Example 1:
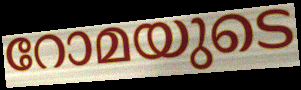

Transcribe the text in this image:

റോമയുടെ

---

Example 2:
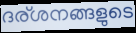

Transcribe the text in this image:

ദര്ശനങ്ങളുടെ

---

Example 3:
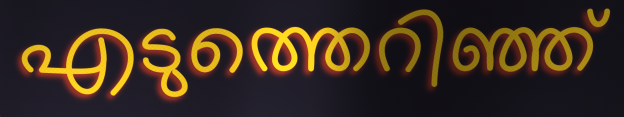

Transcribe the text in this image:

എടുത്തെറിഞ്ഞ്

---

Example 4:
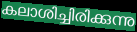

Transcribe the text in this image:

കലാശിച്ചിരിക്കുന്നു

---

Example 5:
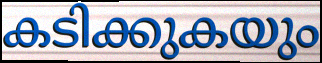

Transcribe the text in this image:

കടിക്കുകയും